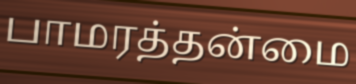
பாமரத்தன்மை